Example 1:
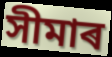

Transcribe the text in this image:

সীমাৰ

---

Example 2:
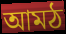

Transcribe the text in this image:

আমঠ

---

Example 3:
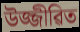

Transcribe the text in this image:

উজ্জীৱিত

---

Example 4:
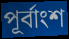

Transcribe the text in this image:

পূৰ্বাংশ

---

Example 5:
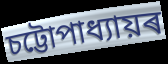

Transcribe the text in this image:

চট্টোপাধ্যায়ৰ